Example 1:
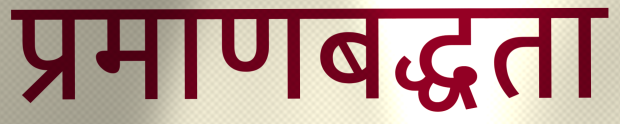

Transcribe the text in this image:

प्रमाणबद्धता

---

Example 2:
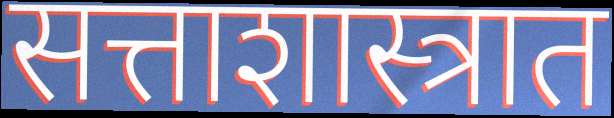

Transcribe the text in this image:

सत्ताशास्त्रात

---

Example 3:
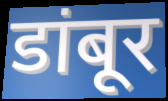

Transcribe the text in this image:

डांबूर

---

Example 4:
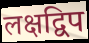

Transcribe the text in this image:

लक्षद्विप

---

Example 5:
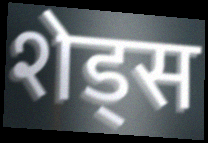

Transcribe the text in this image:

शेड्स